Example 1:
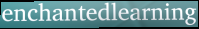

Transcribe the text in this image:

enchantedlearning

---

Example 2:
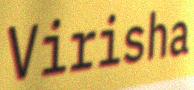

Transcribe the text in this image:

Virisha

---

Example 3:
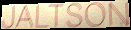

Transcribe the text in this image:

JALTSON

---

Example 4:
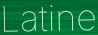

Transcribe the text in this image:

Latine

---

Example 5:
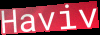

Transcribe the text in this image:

Haviv